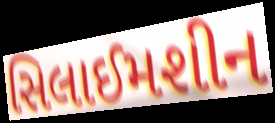
સિલાઈમશીન